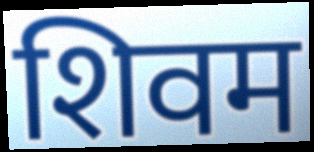
शिवम